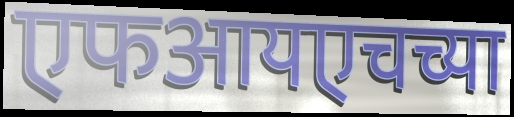
एफआयएचच्या